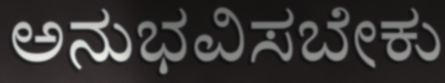
ಅನುಭವಿಸಬೇಕು